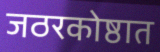
जठरकोष्ठात